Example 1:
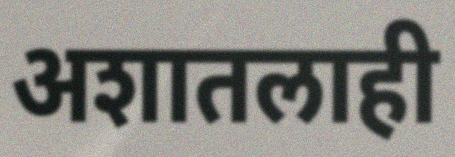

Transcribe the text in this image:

अशातलाही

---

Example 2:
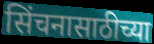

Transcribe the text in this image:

सिंचनासाठीच्या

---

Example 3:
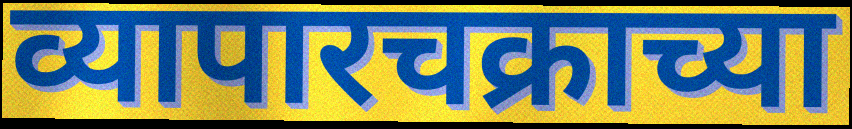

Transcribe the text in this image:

व्यापारचक्राच्या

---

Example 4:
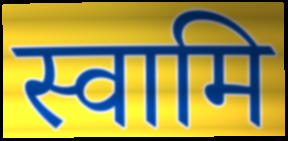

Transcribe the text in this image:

स्वामि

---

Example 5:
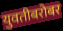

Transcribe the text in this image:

युवतीबरोबर